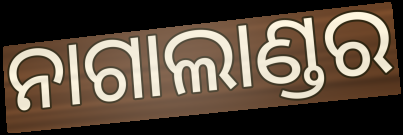
ନାଗାଲାଣ୍ଡର